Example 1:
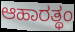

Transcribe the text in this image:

ಆಹಾರತ್ಥಂ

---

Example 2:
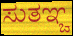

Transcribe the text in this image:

ಸುತಞ್ಚ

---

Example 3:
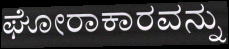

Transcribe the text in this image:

ಘೋರಾಕಾರವನ್ನು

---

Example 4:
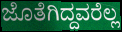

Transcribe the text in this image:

ಜೊತೆಗಿದ್ದವರೆಲ್ಲ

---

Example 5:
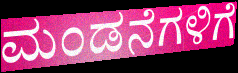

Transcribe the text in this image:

ಮಂಡನೆಗಳಿಗೆ